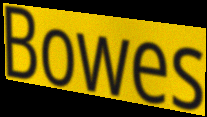
Bowes